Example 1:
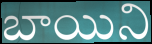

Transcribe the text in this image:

బాయిని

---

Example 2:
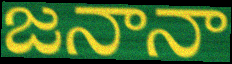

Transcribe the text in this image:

జనానా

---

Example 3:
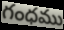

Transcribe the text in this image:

గంధము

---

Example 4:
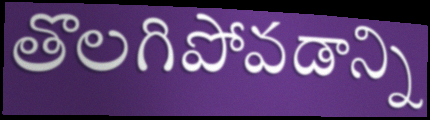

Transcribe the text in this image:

తొలగిపోవడాన్ని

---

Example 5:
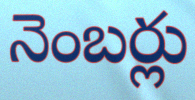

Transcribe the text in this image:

నెంబర్లు